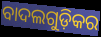
ବାଦଲଗୁଡ଼ିକର